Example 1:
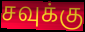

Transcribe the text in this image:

சவுக்கு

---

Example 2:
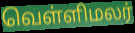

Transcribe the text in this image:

வெள்ளிமலர்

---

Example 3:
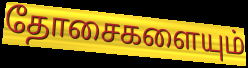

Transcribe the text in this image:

தோசைகளையும்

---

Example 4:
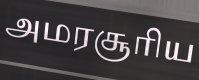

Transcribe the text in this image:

அமரசூரிய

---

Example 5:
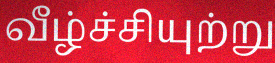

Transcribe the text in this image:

வீழ்ச்சியுற்று